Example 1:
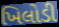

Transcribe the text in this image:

ખિલોડી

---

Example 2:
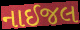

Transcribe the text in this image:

નાઈજલ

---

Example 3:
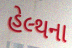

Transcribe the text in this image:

હેલ્થના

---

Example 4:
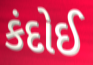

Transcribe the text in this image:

કંદોઈ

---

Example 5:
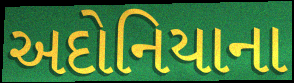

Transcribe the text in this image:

અદોનિયાના